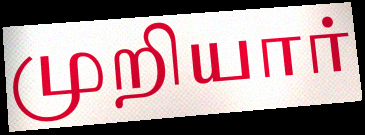
முறியார்